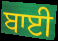
ਬਾਈ